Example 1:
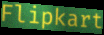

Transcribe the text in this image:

Flipkart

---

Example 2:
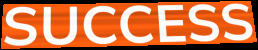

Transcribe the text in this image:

SUCCESS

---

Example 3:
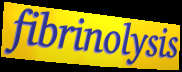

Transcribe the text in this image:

fibrinolysis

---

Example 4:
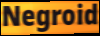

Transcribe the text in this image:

Negroid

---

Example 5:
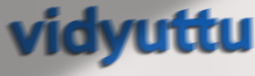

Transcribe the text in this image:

vidyuttu